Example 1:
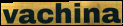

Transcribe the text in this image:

vachina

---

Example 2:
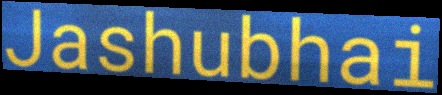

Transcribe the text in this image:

Jashubhai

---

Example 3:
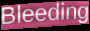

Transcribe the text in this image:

Bleeding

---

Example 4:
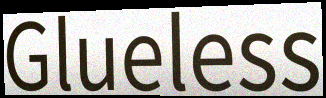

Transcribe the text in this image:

Glueless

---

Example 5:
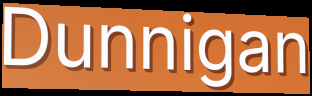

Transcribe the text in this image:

Dunnigan